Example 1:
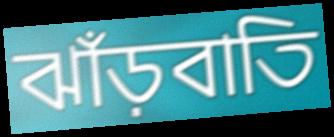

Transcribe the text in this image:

ঝাঁড়বাতি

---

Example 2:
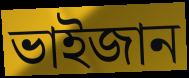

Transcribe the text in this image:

ভাইজান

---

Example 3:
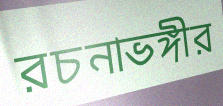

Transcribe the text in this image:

রচনাভঙ্গীর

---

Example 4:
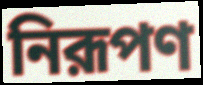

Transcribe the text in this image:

নিরূপণ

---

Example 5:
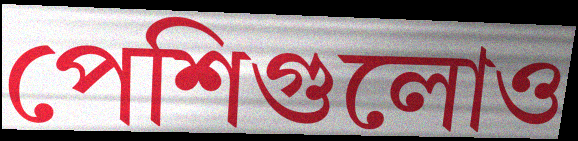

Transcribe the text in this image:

পেশিগুলোও